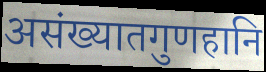
असंख्यातगुणहानि